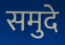
समुदे